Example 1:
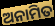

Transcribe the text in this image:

ଅନାମିତ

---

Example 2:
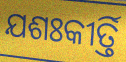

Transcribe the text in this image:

ଯଶଃକୀର୍ତ୍ତି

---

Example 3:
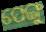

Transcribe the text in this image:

ପେଙ୍ଗୁ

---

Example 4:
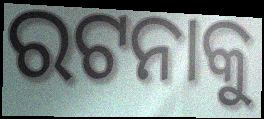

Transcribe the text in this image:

ରଟନାକୁ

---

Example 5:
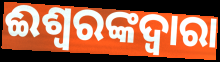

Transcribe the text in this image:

ଈଶ୍ୱରଙ୍କଦ୍ୱାରା